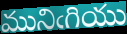
మునిఁగియు